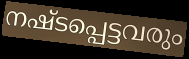
നഷ്ടപ്പെട്ടവരും